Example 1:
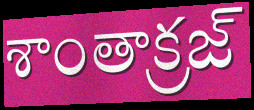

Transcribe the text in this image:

శాంతాక్రజ్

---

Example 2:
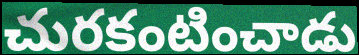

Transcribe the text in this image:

చురకంటించాడు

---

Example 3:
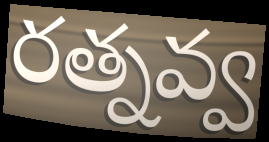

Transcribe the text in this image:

రత్నవ్వ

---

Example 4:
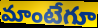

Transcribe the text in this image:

మాంటేగూ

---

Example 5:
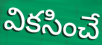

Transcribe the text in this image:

వికసించే